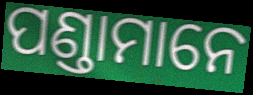
ପଣ୍ଡାମାନେ